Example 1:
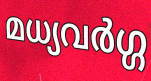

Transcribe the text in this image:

മധ്യവർഗ്ഗ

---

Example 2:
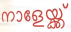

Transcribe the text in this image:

നാളേയ്ക്ക്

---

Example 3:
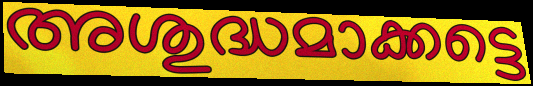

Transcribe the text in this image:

അശുദ്ധമാക്കട്ടെ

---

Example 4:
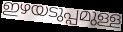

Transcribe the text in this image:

ഇഴയടുപ്പമുള്ള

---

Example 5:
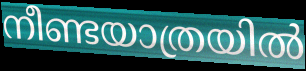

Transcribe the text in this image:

നീണ്ടയാത്രയിൽ